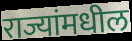
राज्यांमधील